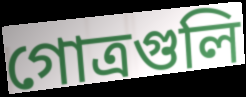
গোত্রগুলি